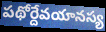
పథోర్దేవయానస్య